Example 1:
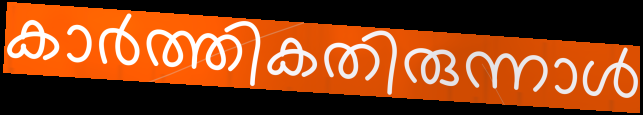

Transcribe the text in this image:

കാർത്തികതിരുന്നാൾ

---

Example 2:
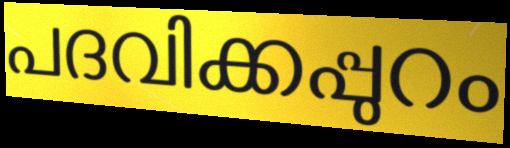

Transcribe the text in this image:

പദവിക്കപ്പുറം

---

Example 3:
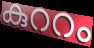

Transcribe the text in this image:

കുററം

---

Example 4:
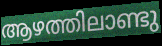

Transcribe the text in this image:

ആഴത്തിലാണ്ടു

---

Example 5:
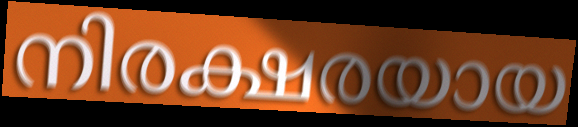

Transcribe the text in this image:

നിരക്ഷരയായ